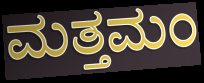
ಮತ್ತಮಂ